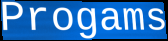
Progams